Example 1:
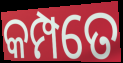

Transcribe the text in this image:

କମ୍ପତେ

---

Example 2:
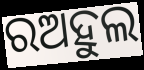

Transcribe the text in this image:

ରଅହୁଲ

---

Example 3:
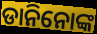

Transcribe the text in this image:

ଡାନିନୋଙ୍କ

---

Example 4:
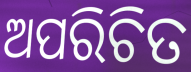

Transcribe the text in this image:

ଅପରିଚିତ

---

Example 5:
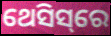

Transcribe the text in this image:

ଥେସିସ୍‌ରେ